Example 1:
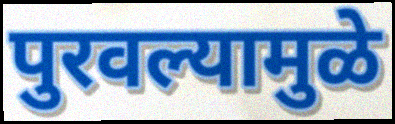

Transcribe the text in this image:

पुरवल्यामुळे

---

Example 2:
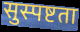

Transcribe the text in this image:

सुस्पष्टता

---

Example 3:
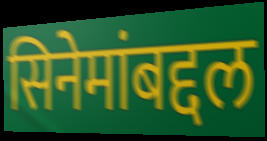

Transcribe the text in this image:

सिनेमांबद्दल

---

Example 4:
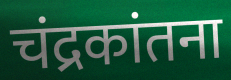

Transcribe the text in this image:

चंद्रकांतना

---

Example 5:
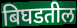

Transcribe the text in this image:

बिघडतील